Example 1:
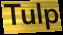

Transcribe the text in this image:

Tulp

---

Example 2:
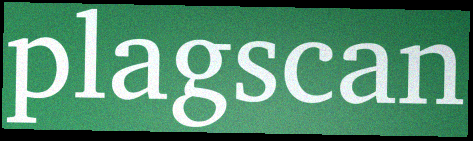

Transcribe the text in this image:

plagscan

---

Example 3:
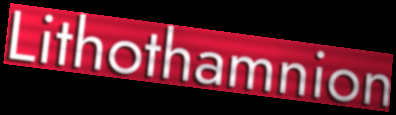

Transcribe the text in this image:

Lithothamnion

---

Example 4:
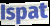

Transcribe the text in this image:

Ispat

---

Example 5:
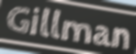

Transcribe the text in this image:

Gillman